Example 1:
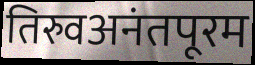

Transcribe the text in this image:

तिरुवअनंतपूरम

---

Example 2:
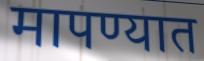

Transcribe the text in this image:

मापण्यात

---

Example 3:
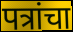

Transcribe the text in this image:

पत्रांचा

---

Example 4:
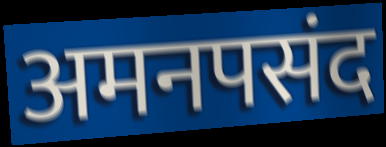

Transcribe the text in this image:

अमनपसंद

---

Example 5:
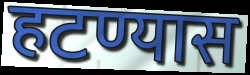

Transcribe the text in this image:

हटण्यास